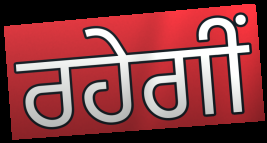
ਰਹੇਗੀਂ